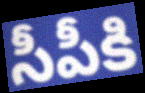
సీపీకి